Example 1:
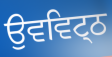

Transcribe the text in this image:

ਉਵਵਿਟ੍ਠ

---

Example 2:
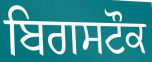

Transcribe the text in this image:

ਬਿਗਸਟੌਕ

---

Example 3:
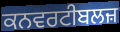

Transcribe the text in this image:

ਕਨਵਰਟੀਬਲਜ਼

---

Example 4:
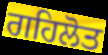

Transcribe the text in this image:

ਗਹਿਲੋਤ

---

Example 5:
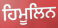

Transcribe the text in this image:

ਹਿਮੂਲਿਨ